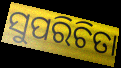
ସୁପରିଚିତା